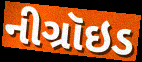
નીગ્રૉઇડ